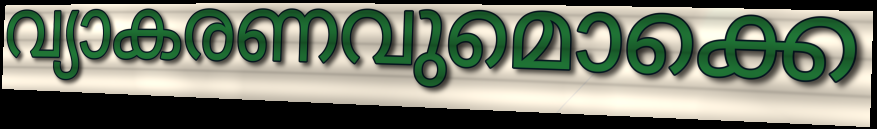
വ്യാകരണവുമൊക്കെ